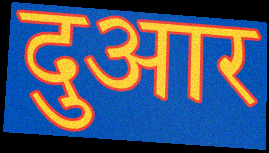
दुआर